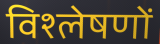
विश्लेषणों